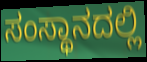
ಸಂಸ್ಥಾನದಲ್ಲಿ